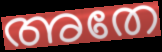
അതേ